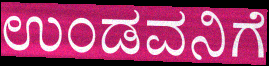
ಉಂಡವನಿಗೆ